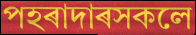
পহৰাদাৰসকলে